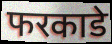
फरकाडे